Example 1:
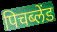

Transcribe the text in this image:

पिचब्लेंड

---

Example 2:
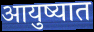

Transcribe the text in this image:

आयुष्यात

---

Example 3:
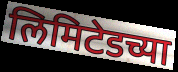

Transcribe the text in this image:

लिमिटेडच्या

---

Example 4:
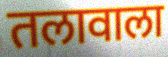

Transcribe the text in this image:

तलावाला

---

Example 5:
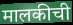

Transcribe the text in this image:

मालकीची